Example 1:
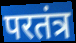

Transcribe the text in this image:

परतंत्र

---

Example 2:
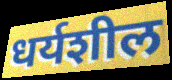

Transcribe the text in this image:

धर्यशील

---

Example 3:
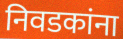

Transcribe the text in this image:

निवडकांना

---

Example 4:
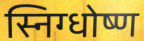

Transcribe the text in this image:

स्निग्धोष्ण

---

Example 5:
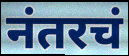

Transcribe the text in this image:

नंतरचं